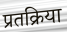
प्रतक्रिया